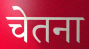
चेतना